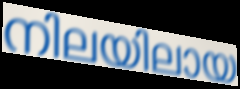
നിലയിലായ